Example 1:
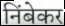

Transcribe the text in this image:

निंबेकर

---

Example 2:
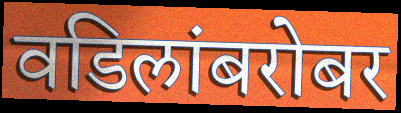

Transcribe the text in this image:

वडिलांबरोबर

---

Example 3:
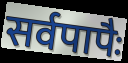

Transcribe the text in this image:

सर्वपापैः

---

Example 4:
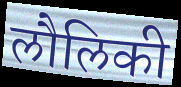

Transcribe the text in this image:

लौलिकी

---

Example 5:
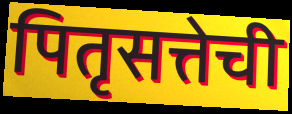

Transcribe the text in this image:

पितृसत्तेची